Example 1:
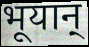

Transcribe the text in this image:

भूयान्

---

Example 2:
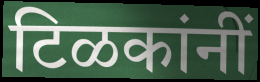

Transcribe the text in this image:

टिळकांनीं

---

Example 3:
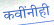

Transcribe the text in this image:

कवींनीही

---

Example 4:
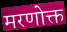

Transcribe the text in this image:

मरणोक्त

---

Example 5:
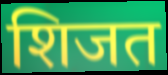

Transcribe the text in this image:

शिजत